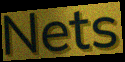
Nets